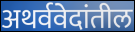
अथर्ववेदांतील